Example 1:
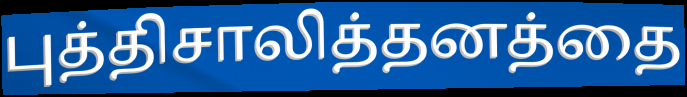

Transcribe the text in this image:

புத்திசாலித்தனத்தை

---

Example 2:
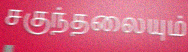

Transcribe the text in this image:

சகுந்தலையும்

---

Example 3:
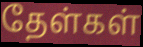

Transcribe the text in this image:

தேள்கள்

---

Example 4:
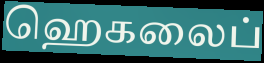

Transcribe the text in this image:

ஹெகலைப்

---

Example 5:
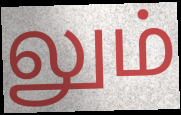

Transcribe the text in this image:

லும்